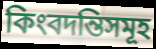
কিংবদন্তিসমূহ